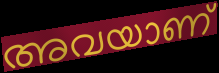
അവയാണ്